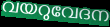
വയറുവേദന